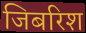
जिबरिश